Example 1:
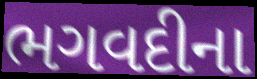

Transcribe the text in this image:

ભગવદીના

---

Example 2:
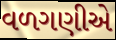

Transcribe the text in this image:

વળગણીએ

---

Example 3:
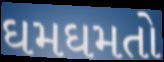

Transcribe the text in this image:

ઘમઘમતો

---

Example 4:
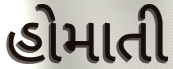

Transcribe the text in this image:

હોમાતી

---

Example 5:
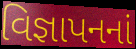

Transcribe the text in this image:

વિજ્ઞાપનનાં